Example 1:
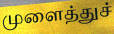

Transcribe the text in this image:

முளைத்துச்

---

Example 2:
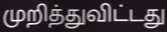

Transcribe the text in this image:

முறித்துவிட்டது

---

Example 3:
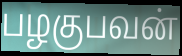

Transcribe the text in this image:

பழகுபவன்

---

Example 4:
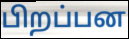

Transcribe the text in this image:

பிறப்பன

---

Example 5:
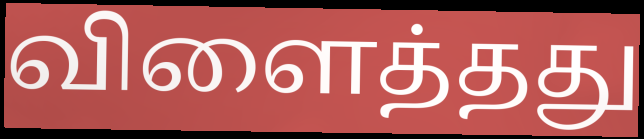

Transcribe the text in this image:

விளைத்தது